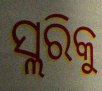
ସ୍ଲରିକୁ